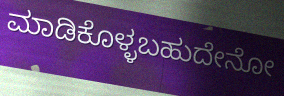
ಮಾಡಿಕೊಳ್ಳಬಹುದೇನೋ